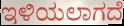
ಇಳಿಯಲಾಗದೆ